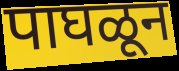
पाघळून